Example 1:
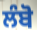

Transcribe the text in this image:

ਲੰਬੋ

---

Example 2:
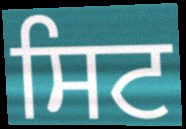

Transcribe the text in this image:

ਸਿਟ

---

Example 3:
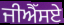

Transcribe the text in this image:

ਜੀਐੱਸਏ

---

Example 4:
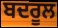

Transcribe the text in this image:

ਬਦਰੂਲ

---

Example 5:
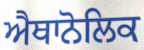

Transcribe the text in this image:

ਐਥਾਨੋਲਿਕ